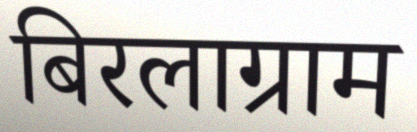
बिरलाग्राम